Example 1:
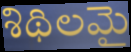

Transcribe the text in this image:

శిథిలమై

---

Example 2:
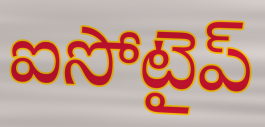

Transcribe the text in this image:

ఐసోటైప్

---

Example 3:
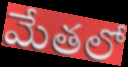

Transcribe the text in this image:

మేతలో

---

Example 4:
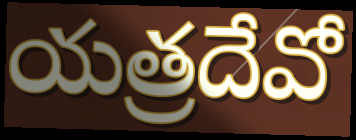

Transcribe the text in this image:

యత్రదేవో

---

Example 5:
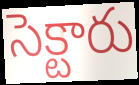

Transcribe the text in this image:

సెక్టారు